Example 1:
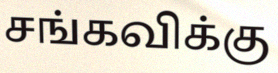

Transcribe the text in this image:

சங்கவிக்கு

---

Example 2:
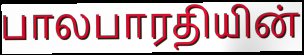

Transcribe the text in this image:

பாலபாரதியின்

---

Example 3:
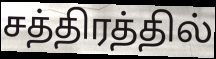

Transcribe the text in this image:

சத்திரத்தில்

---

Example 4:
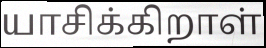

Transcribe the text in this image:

யாசிக்கிறாள்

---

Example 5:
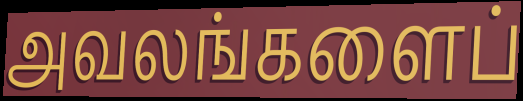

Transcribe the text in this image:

அவலங்களைப்